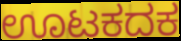
ಊಟಕದಕ